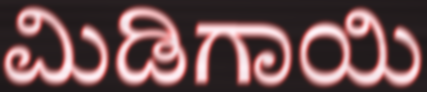
ಮಿಡಿಗಾಯಿ